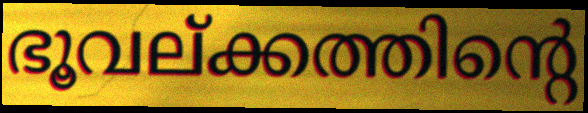
ഭൂവല്ക്കത്തിന്റെ